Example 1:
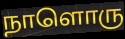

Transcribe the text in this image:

நாளொரு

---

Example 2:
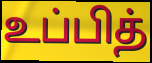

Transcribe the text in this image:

உப்பித்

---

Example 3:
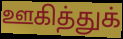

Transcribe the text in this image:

ஊகித்துக்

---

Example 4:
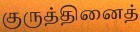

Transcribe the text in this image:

குருத்தினைத்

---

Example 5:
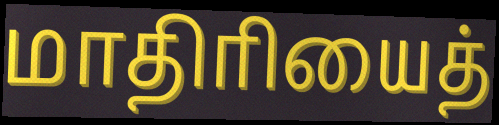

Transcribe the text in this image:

மாதிரியைத்